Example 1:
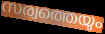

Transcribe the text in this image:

സര്വത്തെയും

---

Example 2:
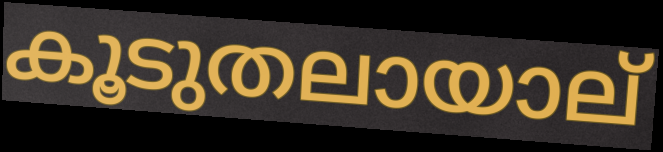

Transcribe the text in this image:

കൂടുതലായാല്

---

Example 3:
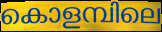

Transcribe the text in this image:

കൊളമ്പിലെ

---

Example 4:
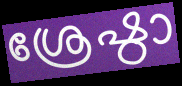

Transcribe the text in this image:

ശ്രേഷ്ഠാ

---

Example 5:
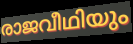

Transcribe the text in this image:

രാജവീഥിയും